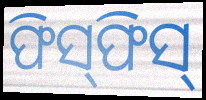
ଫିସ୍‍ଫିସ୍